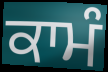
ਕਾਮੰ